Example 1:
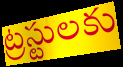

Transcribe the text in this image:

ట్రస్టులకు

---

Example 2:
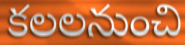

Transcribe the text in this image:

కలలనుంచి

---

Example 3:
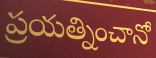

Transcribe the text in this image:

ప్రయత్నించానో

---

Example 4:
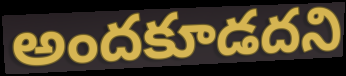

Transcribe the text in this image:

అందకూడదని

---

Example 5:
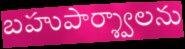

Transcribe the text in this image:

బహుపార్శ్వాలను